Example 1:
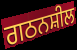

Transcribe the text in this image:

ਗਠਨਸ਼ੀਲ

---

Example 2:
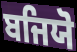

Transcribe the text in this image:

ਬਜਿਯੋ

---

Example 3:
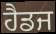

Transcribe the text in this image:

ਹੈਡਜ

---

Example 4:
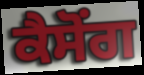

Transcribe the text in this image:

ਕੈਸੋਂਗ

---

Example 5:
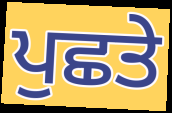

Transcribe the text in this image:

ਪੁਛਤੇ